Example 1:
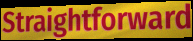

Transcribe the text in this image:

Straightforward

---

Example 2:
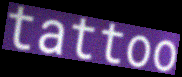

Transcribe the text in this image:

tattoo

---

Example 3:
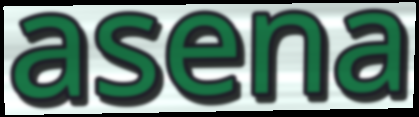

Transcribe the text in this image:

asena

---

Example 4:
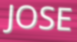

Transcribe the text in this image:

JOSE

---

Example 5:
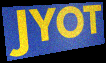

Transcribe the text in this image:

JYOT